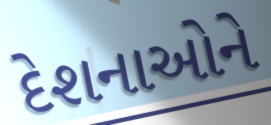
દેશનાઓને